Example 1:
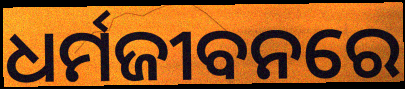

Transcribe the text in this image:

ଧର୍ମଜୀବନରେ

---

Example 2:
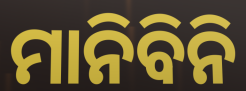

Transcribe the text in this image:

ମାନିବିନି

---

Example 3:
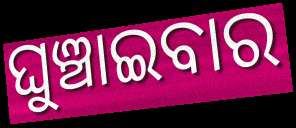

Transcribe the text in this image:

ଘୁଞ୍ଚାଇବାର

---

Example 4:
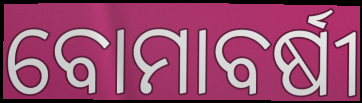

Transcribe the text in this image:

ବୋମାବର୍ଷୀ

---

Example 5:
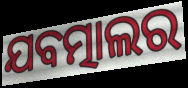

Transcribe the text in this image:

ଯବତ୍ମାଲର